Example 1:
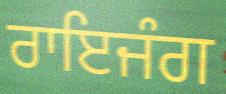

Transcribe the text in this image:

ਰਾਇਜੰਗ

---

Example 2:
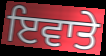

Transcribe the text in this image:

ਇਵਾਤੇ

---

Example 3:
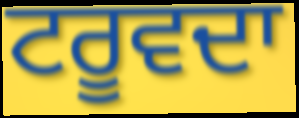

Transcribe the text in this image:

ਟਰੂਵਦਾ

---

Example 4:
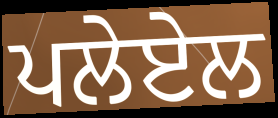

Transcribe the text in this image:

ਪਲੇਏਲ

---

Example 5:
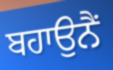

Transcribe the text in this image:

ਬਹਾਉਨੈਂ